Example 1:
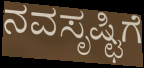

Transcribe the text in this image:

ನವಸೃಷ್ಟಿಗೆ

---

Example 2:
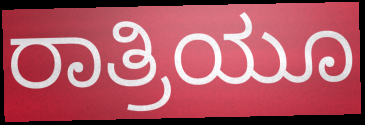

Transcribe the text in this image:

ರಾತ್ರಿಯೂ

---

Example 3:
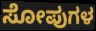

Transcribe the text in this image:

ಸೋಪುಗಳ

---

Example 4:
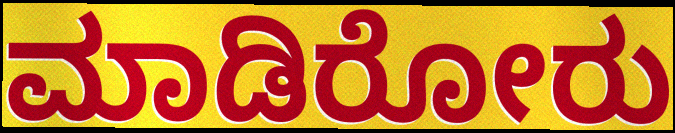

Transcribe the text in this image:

ಮಾಡಿರೋರು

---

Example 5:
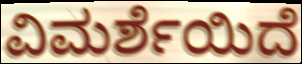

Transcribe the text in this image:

ವಿಮರ್ಶೆಯಿದೆ